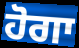
ਹੋਗਾ